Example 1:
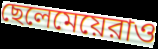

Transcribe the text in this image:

ছেলেমেয়েরাও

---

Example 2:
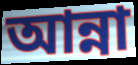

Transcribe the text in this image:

আন্না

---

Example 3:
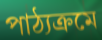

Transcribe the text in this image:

পাঠ্যক্রমে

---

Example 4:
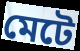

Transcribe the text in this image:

মেটে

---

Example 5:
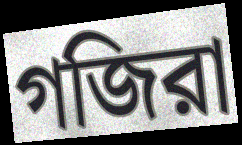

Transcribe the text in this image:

গজিরা